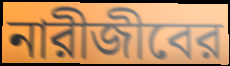
নারীজীবের